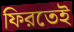
ফিরতেই